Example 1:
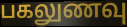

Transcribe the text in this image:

பகலுணவு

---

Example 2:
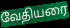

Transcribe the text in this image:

வேதியரை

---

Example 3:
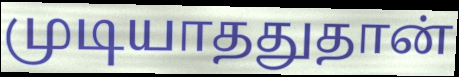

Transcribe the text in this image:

முடியாததுதான்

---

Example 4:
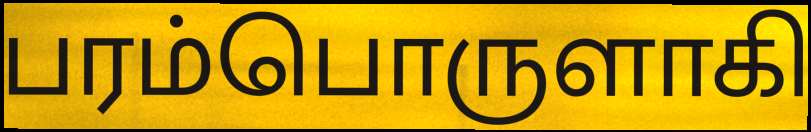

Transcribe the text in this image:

பரம்பொருளாகி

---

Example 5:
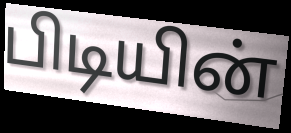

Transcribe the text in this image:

பிடியின்